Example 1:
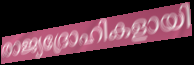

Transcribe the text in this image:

രാജ്യദ്രോഹികളായി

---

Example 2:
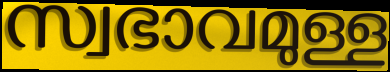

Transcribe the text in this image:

സ്വഭാവമുള്ള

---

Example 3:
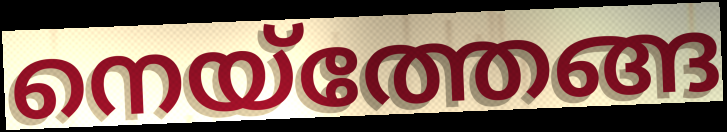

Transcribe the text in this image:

നെയ്ത്തേങ്ങ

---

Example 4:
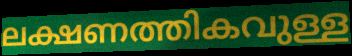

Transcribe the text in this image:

ലക്ഷണത്തികവുള്ള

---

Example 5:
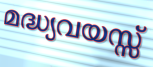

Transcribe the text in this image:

മദ്ധ്യവയസ്സ്